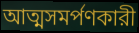
আত্মসমর্পণকারী